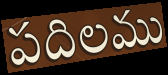
పదిలము